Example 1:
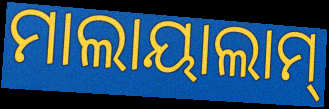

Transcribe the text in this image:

ମାଲାୟାଲାମ୍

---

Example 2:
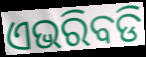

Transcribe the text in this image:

ଏଭରିବଡି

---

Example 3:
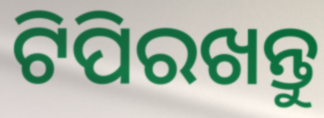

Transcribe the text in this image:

ଟିପିରଖନ୍ତୁ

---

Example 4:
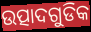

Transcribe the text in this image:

ଉତ୍ପାଦଗୁଡିକ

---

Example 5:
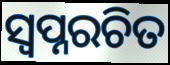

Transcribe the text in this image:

ସ୍ୱପ୍ନରଚିତ